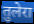
तुलेरा